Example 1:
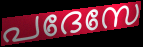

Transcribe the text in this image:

പദേസേ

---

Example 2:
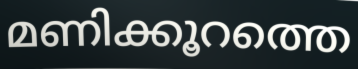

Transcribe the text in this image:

മണിക്കൂറത്തെ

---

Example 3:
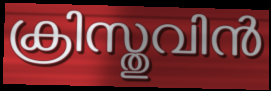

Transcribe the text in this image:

ക്രിസ്തുവിൻ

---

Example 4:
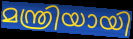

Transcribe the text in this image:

മന്ത്രിയായി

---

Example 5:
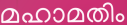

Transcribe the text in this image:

മഹാമതിം